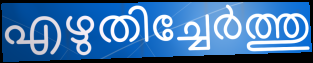
എഴുതിച്ചേർത്തു